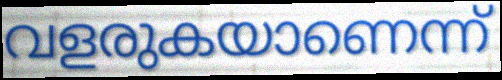
വളരുകയാണെന്ന്